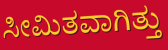
ಸೀಮಿತವಾಗಿತ್ತು